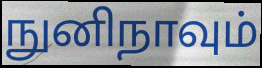
நுனிநாவும்